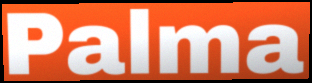
Palma